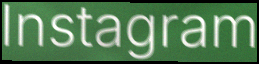
Instagram